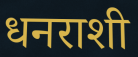
धनराशी